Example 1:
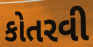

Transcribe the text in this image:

કોતરવી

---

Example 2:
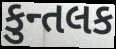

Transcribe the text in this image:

કુન્તલક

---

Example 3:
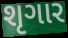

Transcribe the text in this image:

શૃગાર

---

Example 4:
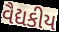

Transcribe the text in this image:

વૈદ્યકીય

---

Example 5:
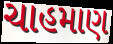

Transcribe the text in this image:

ચાહમાણ